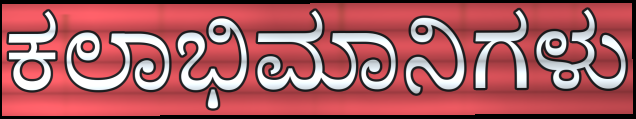
ಕಲಾಭಿಮಾನಿಗಳು